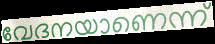
വേദനയാണെന്ന്